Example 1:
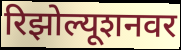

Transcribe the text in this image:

रिझोल्यूशनवर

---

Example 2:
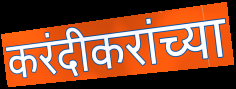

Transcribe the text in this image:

करंदीकरांच्या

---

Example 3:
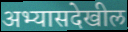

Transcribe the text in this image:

अभ्यासदेखील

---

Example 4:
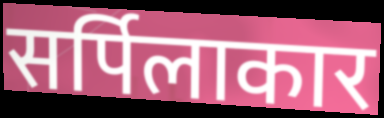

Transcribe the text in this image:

सर्पिलाकार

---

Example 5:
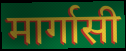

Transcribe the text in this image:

मार्गासी